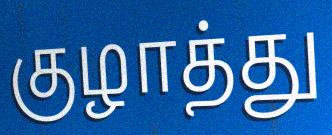
குழாத்து